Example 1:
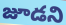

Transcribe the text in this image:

జూడని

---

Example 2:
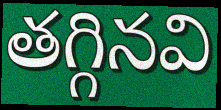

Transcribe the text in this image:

తగ్గినవి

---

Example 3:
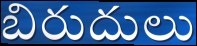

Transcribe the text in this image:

బిరుదులు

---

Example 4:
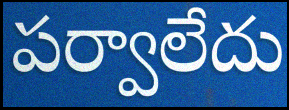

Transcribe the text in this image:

పర్వాలేదు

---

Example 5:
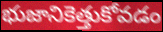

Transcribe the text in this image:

భుజానికెత్తుకోవడం